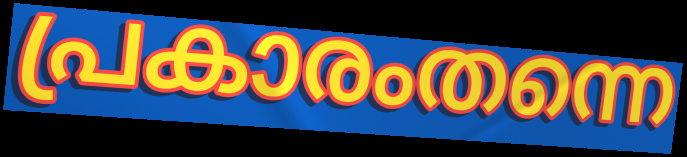
പ്രകാരംതന്നെ